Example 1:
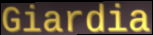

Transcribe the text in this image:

Giardia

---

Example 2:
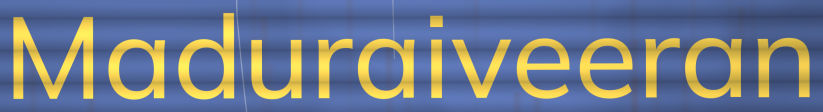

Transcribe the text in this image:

Maduraiveeran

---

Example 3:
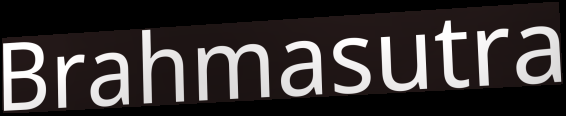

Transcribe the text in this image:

Brahmasutra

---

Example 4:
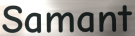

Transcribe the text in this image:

Samant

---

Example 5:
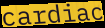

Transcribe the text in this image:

cardiac